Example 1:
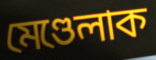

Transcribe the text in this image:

মেণ্ডেলাক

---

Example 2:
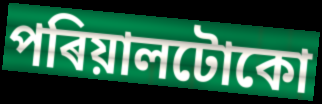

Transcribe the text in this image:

পৰিয়ালটোকো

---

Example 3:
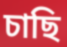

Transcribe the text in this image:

চাছি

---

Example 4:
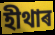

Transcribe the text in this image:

হীথাৰ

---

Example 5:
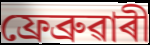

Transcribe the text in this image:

ফ্ৰেব্ৰুৱাৰী